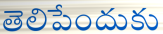
తెలిపేందుకు